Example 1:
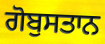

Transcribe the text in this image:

ਗੋਬੁਸਤਾਨ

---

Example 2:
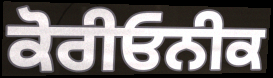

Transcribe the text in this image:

ਕੋਰੀਓਨੀਕ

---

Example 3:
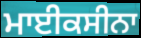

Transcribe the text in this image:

ਮਾਈਕਸੀਨਾ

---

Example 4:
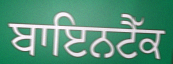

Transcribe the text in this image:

ਬਾਇਨਟੈੱਕ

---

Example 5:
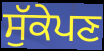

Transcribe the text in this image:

ਸੁੱਕੇਪਣ